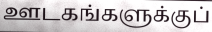
ஊடகங்களுக்குப்